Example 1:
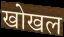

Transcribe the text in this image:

खोखल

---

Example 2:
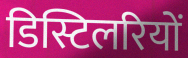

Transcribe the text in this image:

डिस्टिलरियों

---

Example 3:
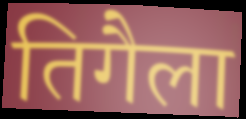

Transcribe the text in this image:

तिगैला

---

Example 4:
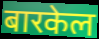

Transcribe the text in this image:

बारकेल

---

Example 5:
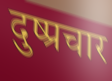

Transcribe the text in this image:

दुष्प्रचार